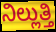
ನಿಲ್ಲುತ್ತಿ